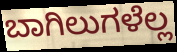
ಬಾಗಿಲುಗಳೆಲ್ಲ